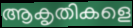
ആകൃതികളെ